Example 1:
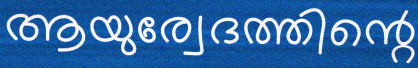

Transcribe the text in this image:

ആയുര്വേദത്തിന്റെ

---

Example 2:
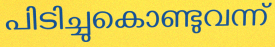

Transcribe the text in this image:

പിടിച്ചുകൊണ്ടുവന്ന്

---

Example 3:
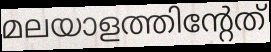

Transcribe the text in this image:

മലയാളത്തിന്റേത്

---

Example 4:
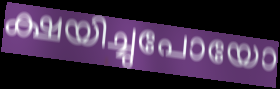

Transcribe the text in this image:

ക്ഷയിച്ചുപോയോ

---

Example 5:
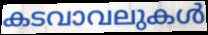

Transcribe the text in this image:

കടവാവലുകൾ